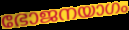
ഭോജനയാഗം